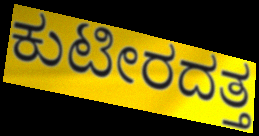
ಕುಟೀರದತ್ತ